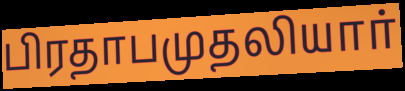
பிரதாபமுதலியார்